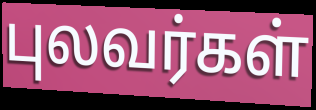
புலவர்கள்